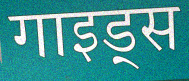
गाइड्स